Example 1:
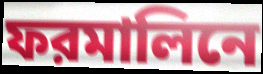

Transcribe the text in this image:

ফরমালিনে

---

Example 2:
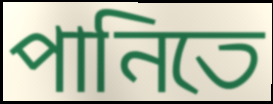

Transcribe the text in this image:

পানিতে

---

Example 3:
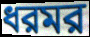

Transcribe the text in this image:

ধরমর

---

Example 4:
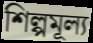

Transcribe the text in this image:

শিল্পমূল্য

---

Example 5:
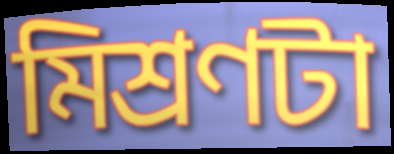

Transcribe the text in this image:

মিশ্রণটা